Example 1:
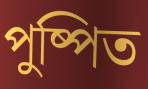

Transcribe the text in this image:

পুষ্পিত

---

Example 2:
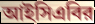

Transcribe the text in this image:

আইসিএবির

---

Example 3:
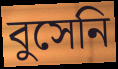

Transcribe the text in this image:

বুসেনি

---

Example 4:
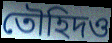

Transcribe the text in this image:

তৌহিদও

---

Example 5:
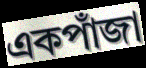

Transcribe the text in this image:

একপাঁজা